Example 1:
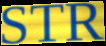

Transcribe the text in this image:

STR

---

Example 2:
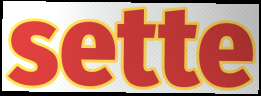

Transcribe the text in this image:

sette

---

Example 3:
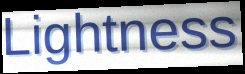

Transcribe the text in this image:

Lightness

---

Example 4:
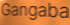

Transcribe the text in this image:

Gangaba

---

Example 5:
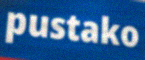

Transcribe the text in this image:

pustako